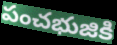
పంచభుజికి